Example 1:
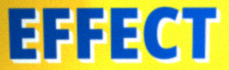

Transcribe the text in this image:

EFFECT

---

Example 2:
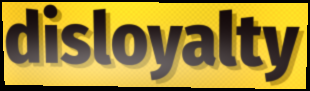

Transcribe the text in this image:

disloyalty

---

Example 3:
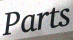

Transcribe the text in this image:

Parts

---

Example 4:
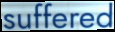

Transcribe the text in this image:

suffered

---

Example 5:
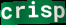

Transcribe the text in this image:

crisp